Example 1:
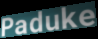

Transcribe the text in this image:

Paduke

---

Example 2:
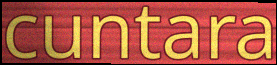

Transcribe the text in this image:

cuntara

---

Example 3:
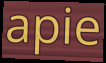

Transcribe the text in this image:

apie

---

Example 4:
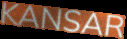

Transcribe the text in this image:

KANSAR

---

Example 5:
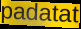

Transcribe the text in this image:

padatat